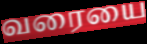
வரையை